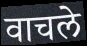
वाचले